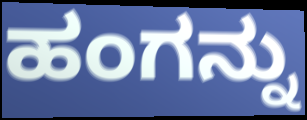
ಹಂಗನ್ನು